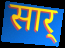
सार्